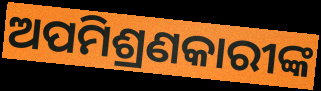
ଅପମିଶ୍ରଣକାରୀଙ୍କ